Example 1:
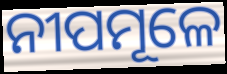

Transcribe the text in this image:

ନୀପମୂଳେ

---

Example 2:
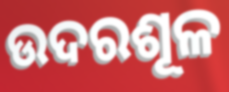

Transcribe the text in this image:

ଉଦରଶୂଳ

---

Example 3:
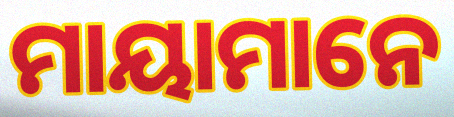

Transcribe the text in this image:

ମାୟାମାନେ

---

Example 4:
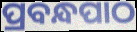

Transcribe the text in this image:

ପ୍ରବନ୍ଧପାଠ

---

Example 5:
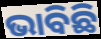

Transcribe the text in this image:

ଭାବିଛି